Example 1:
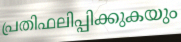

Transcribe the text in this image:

പ്രതിഫലിപ്പിക്കുകയും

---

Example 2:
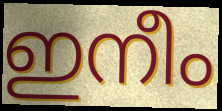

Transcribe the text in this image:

ഇനീം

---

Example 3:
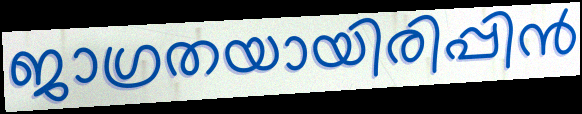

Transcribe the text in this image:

ജാഗ്രതയായിരിപ്പിൻ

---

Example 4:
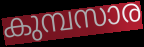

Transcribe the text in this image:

കുമ്പസാര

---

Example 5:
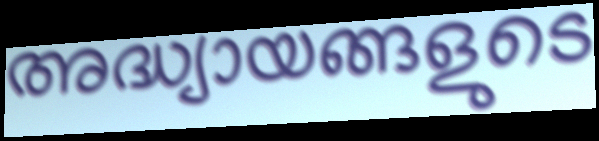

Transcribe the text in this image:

അദ്ധ്യായങ്ങളുടെ